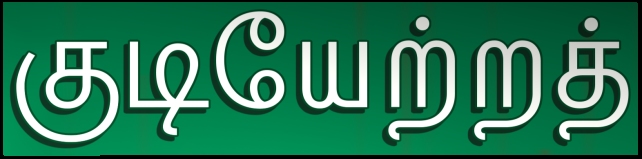
குடியேற்றத்